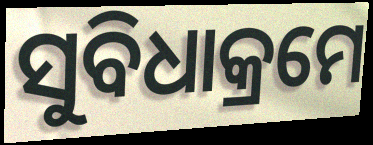
ସୁବିଧାକ୍ରମେ